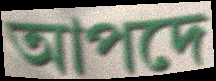
আপদে